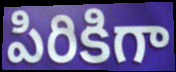
పిరికిగా